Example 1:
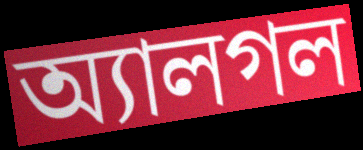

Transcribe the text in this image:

অ্যালগল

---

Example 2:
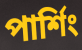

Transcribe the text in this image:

পার্শিং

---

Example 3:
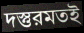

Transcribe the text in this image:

দস্তুরমতই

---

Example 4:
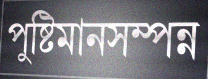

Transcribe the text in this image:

পুষ্টিমানসম্পন্ন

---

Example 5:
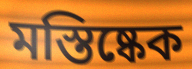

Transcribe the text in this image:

মস্তিষ্কেক